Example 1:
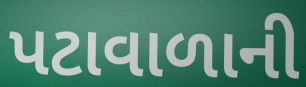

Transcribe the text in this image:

પટાવાળાની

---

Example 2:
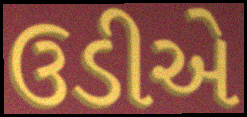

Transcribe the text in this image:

ઉડીએ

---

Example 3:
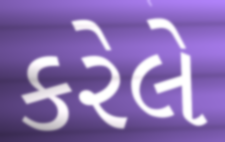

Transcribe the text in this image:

કરેલે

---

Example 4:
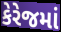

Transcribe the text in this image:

કેરેજમાં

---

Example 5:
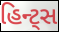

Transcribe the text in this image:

હિન્ટ્સ